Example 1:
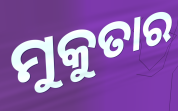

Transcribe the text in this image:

ମୁକୁତାର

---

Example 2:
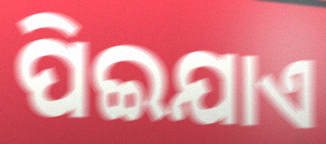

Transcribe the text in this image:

ପିଇଯାଏ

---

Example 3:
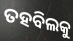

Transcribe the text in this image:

ତହବିଲକୁ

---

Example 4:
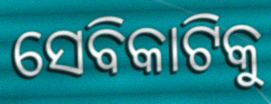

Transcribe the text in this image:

ସେବିକାଟିକୁ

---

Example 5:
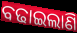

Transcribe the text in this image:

ବଢାଇଲାଣି